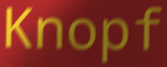
Knopf